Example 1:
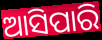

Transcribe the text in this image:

ଆସିପାରି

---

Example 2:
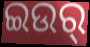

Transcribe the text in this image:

ଇଉର୍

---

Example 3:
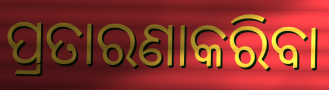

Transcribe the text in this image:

ପ୍ରତାରଣାକରିବା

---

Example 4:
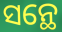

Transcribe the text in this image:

ସନ୍ଥେ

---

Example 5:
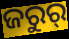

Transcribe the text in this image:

ଜରୁର୍